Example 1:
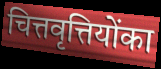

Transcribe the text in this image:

चित्तवृत्तियोंका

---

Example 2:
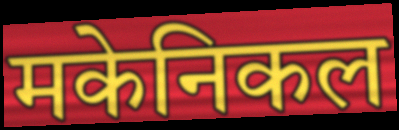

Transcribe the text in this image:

मकेनिकल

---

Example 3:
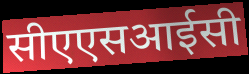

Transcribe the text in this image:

सीएएसआईसी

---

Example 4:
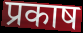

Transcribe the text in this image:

प्रकाष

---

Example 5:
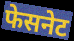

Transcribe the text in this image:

फेसनेट